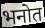
भनोत